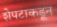
शेपटाकडून